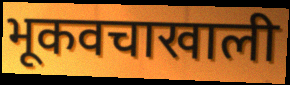
भूकवचाखाली